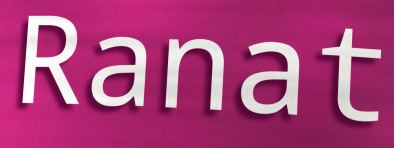
Ranat